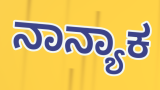
ನಾನ್ಯಾಕ